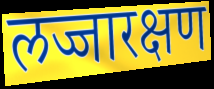
लज्जारक्षण